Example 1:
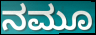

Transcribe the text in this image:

ನಮೂ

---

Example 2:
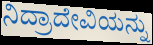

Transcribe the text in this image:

ನಿದ್ರಾದೇವಿಯನ್ನು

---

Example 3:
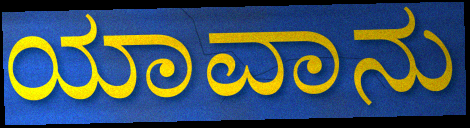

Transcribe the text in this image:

ಯಾವಾನು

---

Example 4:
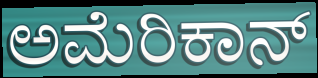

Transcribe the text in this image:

ಅಮೆರಿಕಾನ್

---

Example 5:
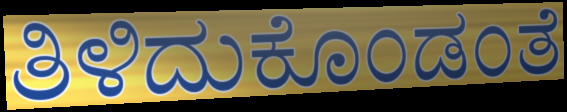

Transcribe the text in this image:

ತಿಳಿದುಕೊಂಡಂತೆ